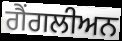
ਗੈਂਗਲੀਅਨ